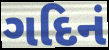
ગદિનં